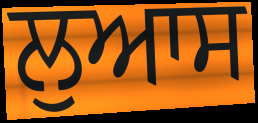
ਲੁਆਸ